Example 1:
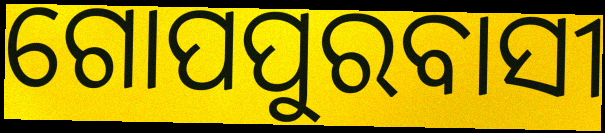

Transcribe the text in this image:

ଗୋପପୁରବାସୀ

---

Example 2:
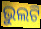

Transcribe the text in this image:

ଭୁଲଟି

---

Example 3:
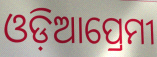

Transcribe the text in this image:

ଓଡ଼ିଆପ୍ରେମୀ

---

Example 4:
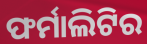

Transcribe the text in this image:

ଫର୍ମାଲିଟିର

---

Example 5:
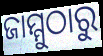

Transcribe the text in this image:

ଜାମ୍ମୁଠାରୁ